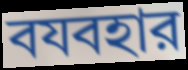
বযবহার